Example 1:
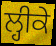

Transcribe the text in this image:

ਲ੍ਹੀਕੇ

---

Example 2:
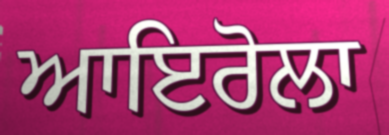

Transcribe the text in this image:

ਆਇਰੋਲਾ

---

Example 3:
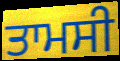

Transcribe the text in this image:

ਤਾਮਸੀ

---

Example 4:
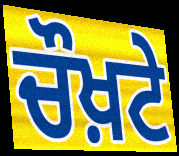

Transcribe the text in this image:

ਚੌਖ਼ਟੇ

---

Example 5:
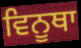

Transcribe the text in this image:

ਵਿਨੂਥਾ